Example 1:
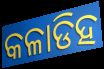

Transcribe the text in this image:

କଳାଡିହ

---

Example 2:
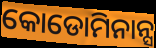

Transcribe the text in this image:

କୋଡୋମିନାନ୍ସ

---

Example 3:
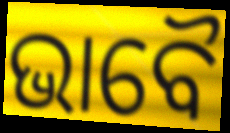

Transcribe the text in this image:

ଭାବୈ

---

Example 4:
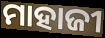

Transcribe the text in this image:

ମାହାଜୀ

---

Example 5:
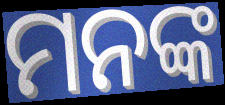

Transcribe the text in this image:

ମନଙ୍କ